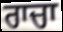
ਰਾਚਾ